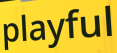
playful